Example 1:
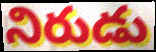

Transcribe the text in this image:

నిరుడు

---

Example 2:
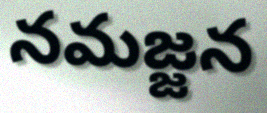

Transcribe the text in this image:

నమజ్జన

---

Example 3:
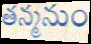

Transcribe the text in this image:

తన్మనుం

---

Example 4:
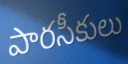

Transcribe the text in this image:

పారసీకులు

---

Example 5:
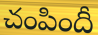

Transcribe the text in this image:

చంపిందీ